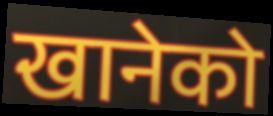
खानेको